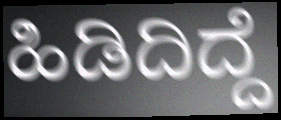
ಹಿಡಿದಿದ್ದೆ